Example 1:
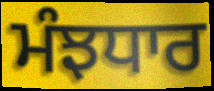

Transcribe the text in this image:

ਮੰਝਧਾਰ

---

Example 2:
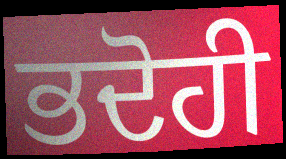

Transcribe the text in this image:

ਭਦੋਹੀ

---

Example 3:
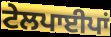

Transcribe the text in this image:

ਟੇਲਪਾਈਪਾਂ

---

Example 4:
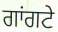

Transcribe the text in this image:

ਗਾਂਗਟੇ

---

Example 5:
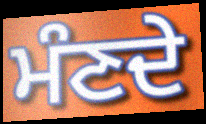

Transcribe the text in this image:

ਮੰਣਦੇ